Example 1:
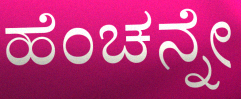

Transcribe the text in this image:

ಹೆಂಚನ್ನೇ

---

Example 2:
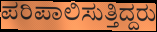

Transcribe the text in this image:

ಪರಿಪಾಲಿಸುತ್ತಿದ್ದರು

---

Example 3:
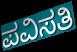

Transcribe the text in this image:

ಪವಿಸತಿ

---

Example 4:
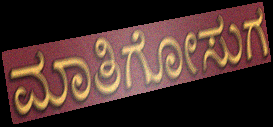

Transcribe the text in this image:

ಮಾತಿಗೋಸುಗ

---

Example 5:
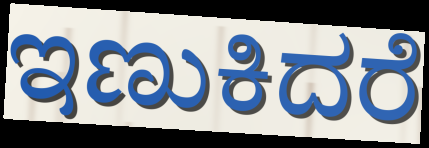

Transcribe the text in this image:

ಇಣುಕಿದರೆ